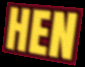
HEN